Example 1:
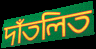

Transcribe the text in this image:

দাঁতলিত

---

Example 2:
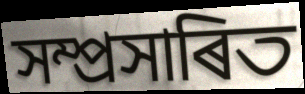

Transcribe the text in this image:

সম্প্ৰসাৰিত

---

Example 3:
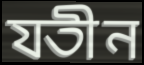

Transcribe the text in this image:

যতীন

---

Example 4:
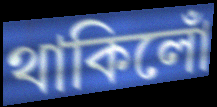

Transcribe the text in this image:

থাকিলোঁ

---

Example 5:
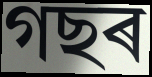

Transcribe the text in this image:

গছৰ